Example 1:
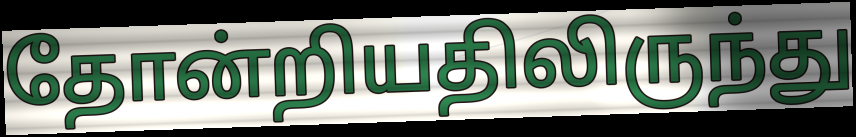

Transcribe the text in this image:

தோன்றியதிலிருந்து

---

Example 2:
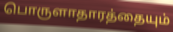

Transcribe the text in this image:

பொருளாதாரத்தையும்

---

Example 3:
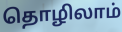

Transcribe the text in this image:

தொழிலாம்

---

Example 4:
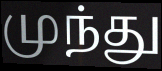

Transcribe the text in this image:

முந்து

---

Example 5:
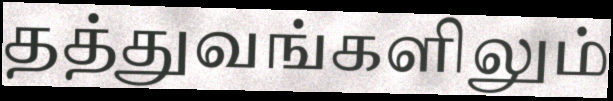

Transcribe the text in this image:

தத்துவங்களிலும்